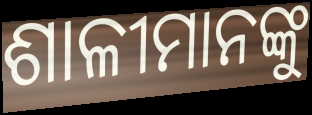
ଶାଳୀମାନଙ୍କୁ